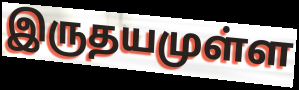
இருதயமுள்ள